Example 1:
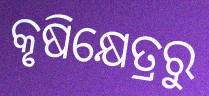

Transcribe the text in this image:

କୃଷିକ୍ଷେତ୍ରରୁ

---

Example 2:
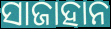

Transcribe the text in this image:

ସାଜାହାନ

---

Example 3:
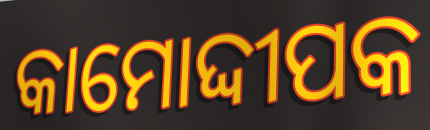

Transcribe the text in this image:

କାମୋଦ୍ଦୀପକ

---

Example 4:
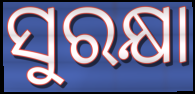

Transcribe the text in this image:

ସୁରକ୍ଷା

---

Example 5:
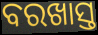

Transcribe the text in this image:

ବରଖାସ୍ତ